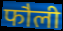
फौली